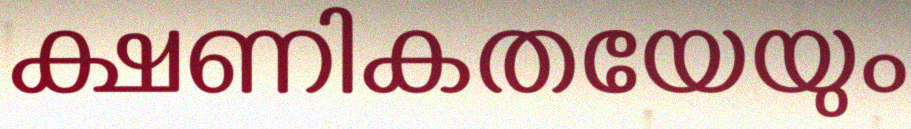
ക്ഷണികതയേയും